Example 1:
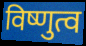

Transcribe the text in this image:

विष्णुत्व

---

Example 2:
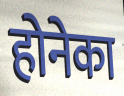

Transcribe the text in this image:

होनेका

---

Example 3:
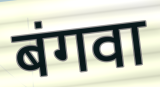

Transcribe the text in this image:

बंगवा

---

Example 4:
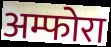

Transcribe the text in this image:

अम्फोरा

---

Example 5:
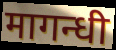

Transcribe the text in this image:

मागन्धी